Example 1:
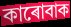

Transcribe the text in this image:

কাৰোবাক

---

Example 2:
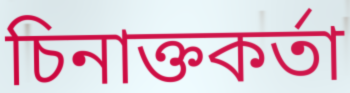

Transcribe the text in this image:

চিনাক্তকৰ্তা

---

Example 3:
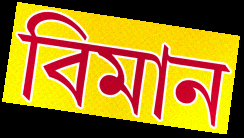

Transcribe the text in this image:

বিমান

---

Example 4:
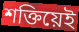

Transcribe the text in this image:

শক্তিয়েই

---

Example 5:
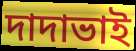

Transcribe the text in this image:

দাদাভাই